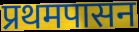
प्रथमपासन